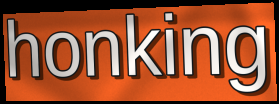
honking